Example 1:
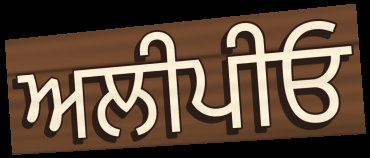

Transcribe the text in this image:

ਅਲੀਪੀਓ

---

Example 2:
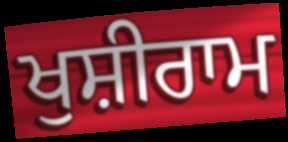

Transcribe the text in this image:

ਖੁਸ਼ੀਰਾਮ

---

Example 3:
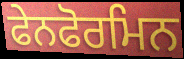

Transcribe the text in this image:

ਫੇਨਫੋਰਮਿਨ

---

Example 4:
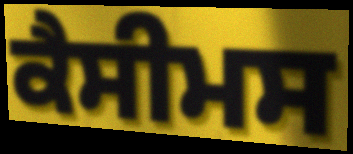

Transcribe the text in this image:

ਕੈਸੀਮਸ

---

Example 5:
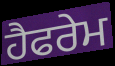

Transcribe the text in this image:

ਹੈਫਰੇਮ